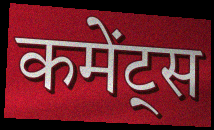
कमेंट्‌स